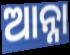
ଆନ୍ନା